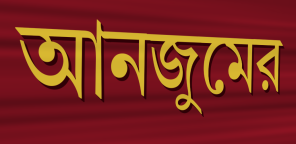
আনজুমের